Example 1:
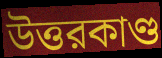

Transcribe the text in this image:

উত্তরকাণ্ড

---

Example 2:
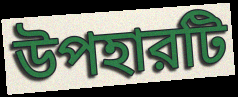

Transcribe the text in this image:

উপহারটি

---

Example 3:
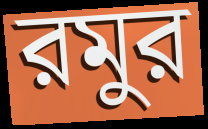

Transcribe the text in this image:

রমুর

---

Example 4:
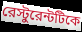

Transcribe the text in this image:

রেস্টুরেন্টটিকে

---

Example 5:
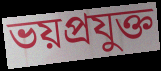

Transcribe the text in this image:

ভয়প্রযুক্ত